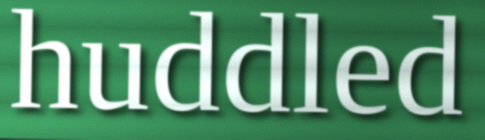
huddled